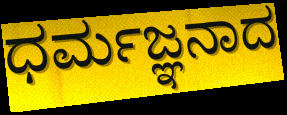
ಧರ್ಮಜ್ಞನಾದ